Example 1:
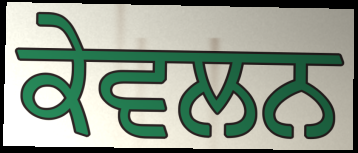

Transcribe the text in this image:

ਕੇਵਲਨ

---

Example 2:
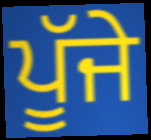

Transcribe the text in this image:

ਪੂੱਜੇ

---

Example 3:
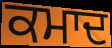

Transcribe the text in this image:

ਕਮਾਦ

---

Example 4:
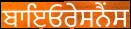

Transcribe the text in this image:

ਬਾਇਓਰੇਸਨੈਂਸ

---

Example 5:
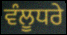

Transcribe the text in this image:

ਵੰਲੂਧਰੇ